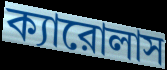
ক্যারোলাস